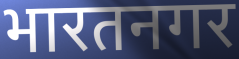
भारतनगर